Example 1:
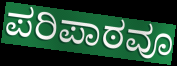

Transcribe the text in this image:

ಪರಿಪಾಠವೂ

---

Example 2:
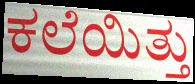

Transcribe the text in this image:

ಕಲೆಯಿತ್ತು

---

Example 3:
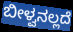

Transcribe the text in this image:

ಬೀಳ್ವನಲ್ಲದೆ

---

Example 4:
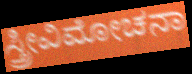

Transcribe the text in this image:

ಸ್ತ್ರೀವಿಮೋಚನಾ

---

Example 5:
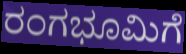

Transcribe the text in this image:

ರಂಗಭೂಮಿಗೆ